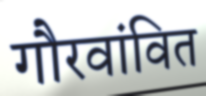
गौरवांवित